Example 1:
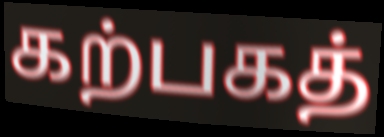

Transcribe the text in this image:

கற்பகத்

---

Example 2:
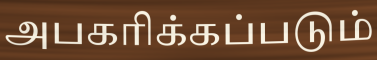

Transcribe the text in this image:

அபகரிக்கப்படும்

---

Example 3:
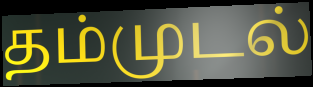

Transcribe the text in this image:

தம்முடல்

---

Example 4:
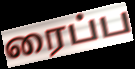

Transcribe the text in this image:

ரைப்ப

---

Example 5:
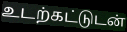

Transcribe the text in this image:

உடற்கட்டுடன்